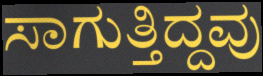
ಸಾಗುತ್ತಿದ್ದವು